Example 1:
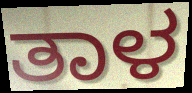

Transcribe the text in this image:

ತಾಳ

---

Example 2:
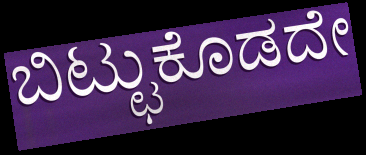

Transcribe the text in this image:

ಬಿಟ್ಟುಕೊಡದೇ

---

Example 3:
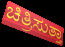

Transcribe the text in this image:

ಚಿತ್ರಿಸುತ್ತಾ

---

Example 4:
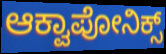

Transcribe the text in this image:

ಆಕ್ವಾಪೋನಿಕ್ಸ್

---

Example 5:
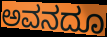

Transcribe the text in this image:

ಅವನದೂ